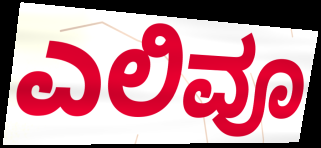
ಎಲಿವೂ